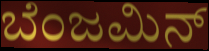
ಬೆಂಜಮಿನ್